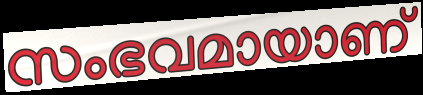
സംഭവമായാണ്